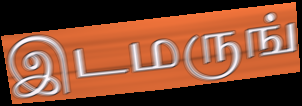
இடமருங்